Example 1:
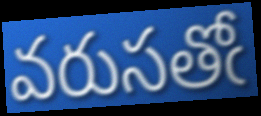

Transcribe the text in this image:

వరుసతోఁ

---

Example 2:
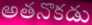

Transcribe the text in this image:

అతనొకడు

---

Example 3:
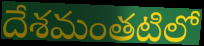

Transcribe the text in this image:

దేశమంతటిలో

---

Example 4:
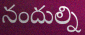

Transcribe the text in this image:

నందుల్ని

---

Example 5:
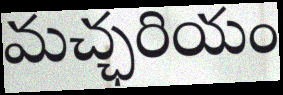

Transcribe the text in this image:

మచ్ఛరియం